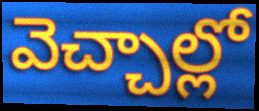
వెచ్చాల్లో